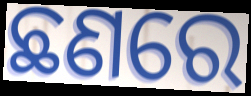
ଛଣରେ